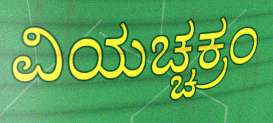
ವಿಯಚ್ಚಕ್ರಂ